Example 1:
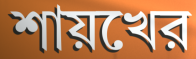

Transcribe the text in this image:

শায়খের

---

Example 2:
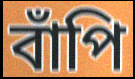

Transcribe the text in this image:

বাঁপি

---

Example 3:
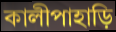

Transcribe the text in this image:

কালীপাহাড়ি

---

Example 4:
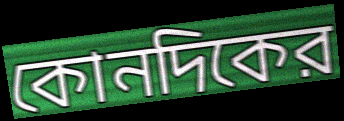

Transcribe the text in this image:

কোনদিকের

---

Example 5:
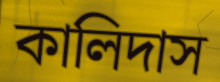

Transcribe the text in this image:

কালিদাস